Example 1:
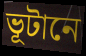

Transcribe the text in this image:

ভূটানে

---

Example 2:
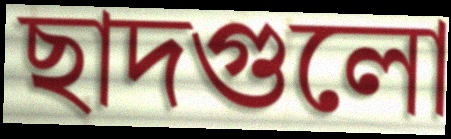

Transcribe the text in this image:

ছাদগুলো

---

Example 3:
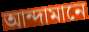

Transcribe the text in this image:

আন্দামানে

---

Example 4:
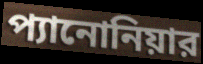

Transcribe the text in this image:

প্যানোনিয়ার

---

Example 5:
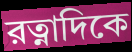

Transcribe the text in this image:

রত্নাদিকে